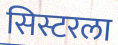
सिस्टरला